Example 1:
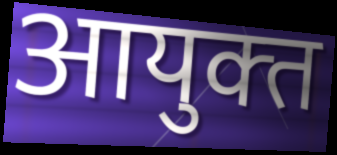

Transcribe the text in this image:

आयुक्‍त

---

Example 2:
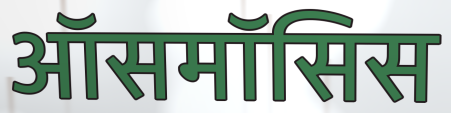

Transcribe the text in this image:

ऑसमॉसिस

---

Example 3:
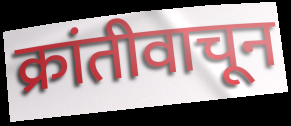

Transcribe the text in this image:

क्रांतीवाचून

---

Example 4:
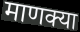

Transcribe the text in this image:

माणक्या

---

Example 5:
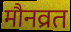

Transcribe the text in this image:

मौनव्रत